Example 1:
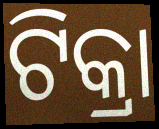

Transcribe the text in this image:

ଟିକ୍ରା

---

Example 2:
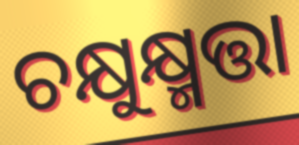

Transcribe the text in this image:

ଚକ୍ଷୁକ୍ଷ୍ମତ୍ତା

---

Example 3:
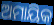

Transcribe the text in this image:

ଅମାୟିକ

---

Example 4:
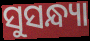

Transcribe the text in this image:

ସୁସନ୍ଧ୍ୟା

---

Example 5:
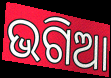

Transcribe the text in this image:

ଭଗିଆ